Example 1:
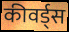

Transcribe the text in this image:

कीवर्ड्स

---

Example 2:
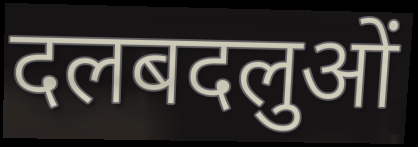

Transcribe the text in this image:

दलबदलुओं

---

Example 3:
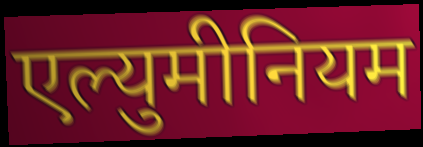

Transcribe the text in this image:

एल्युमीनियम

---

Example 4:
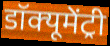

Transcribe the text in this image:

डॉक्‍यूमेंट्री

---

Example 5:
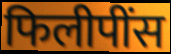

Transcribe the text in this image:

फिलीपींस